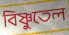
বিষ্ণুতেল